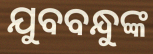
ଯୁବବନ୍ଧୁଙ୍କ